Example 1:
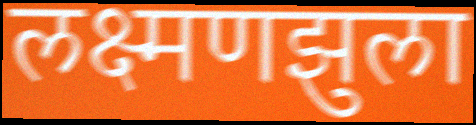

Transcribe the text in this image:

लक्ष्मणझुला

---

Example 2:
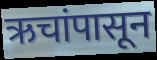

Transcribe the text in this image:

ऋचांपासून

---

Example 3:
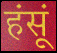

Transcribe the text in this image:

हंसूं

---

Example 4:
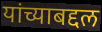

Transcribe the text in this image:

यांच्याबद्दल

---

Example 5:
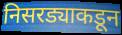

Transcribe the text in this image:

निसरड्याकडून